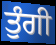
ਤੁੰਗੀ